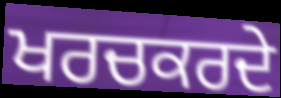
ਖਰਚਕਰਦੇ